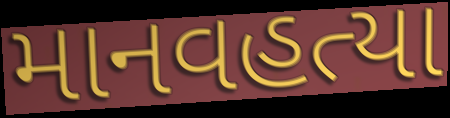
માનવહત્યા